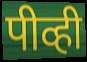
पीव्ही